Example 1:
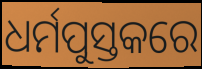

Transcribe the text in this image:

ଧର୍ମପୁସ୍ତକରେ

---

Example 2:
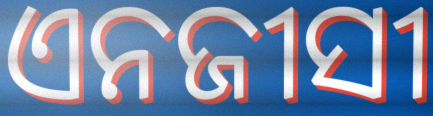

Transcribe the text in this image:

ଏନଜୀସୀ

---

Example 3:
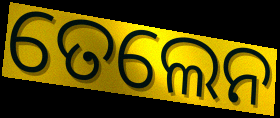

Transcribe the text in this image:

ତେଲେନ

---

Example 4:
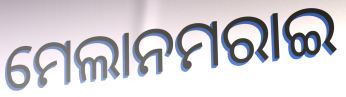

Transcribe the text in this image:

ମେଲାନମରାଇ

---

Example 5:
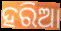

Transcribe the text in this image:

ହରିଆ